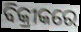
ବିକ୍ରୀକରେ